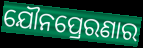
ଯୌନପ୍ରେରଣାର